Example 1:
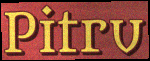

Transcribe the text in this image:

Pitru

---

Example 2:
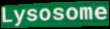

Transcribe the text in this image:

Lysosome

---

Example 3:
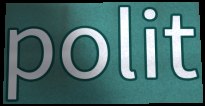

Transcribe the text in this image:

polit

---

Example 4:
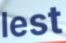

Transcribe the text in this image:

lest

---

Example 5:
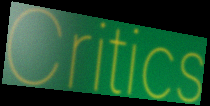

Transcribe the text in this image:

Critics